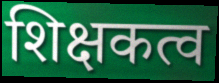
शिक्षकत्व